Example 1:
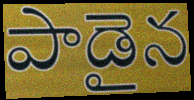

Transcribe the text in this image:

పాడైన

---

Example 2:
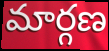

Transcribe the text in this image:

మార్గణ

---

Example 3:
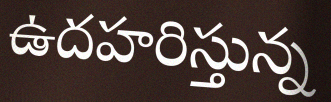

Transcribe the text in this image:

ఉదహరిస్తున్న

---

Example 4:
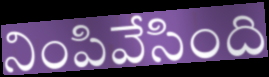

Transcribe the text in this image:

నింపివేసింది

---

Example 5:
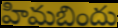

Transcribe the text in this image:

హిమబిందు